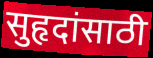
सुहृदांसाठी